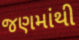
જણમાંથી